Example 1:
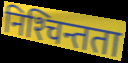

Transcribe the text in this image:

निश्चिन्तता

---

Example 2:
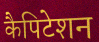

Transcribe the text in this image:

कैपिटेशन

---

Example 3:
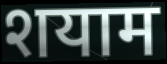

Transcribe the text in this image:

शयाम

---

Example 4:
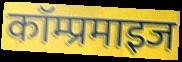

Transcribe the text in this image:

कॉम्प्रमाइज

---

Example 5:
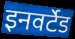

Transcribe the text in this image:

इनवर्टेड